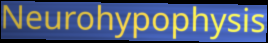
Neurohypophysis